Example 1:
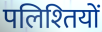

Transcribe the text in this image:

पलिश्‍तियों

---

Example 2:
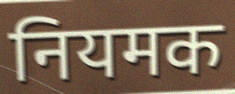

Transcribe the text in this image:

नियमक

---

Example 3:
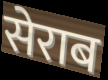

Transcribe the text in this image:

सेराब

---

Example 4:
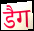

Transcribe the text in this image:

डैग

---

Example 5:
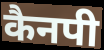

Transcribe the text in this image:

कैनपी